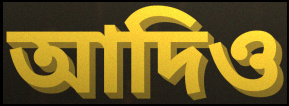
আদিও